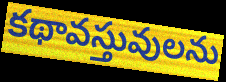
కథావస్తువులను